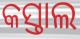
କସ୍ତାଲ